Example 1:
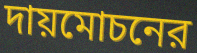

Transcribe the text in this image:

দায়মোচনের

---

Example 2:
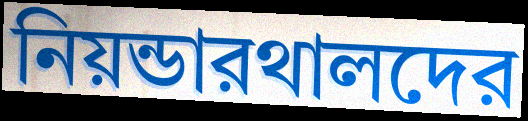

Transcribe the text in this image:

নিয়ন্ডারথালদের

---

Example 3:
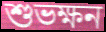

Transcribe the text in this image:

শুভক্ষন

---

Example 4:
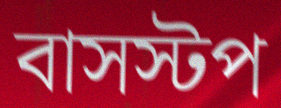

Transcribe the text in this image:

বাসস্টপ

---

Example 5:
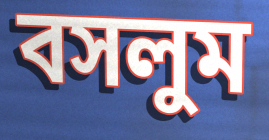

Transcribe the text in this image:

বসলুম